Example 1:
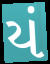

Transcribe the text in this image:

યં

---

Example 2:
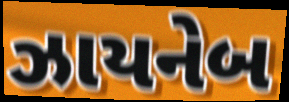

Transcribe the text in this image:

ઝાયનેબ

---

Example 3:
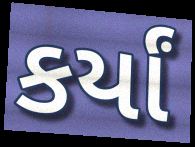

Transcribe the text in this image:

કર્યાં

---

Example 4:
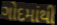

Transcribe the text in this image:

ગોદમાંથી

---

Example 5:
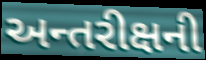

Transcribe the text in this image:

અન્તરીક્ષની